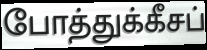
போத்துக்கீசப்